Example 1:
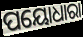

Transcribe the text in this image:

ପୟୋଧାରା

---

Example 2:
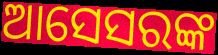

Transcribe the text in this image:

ଆସେସରଙ୍କ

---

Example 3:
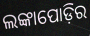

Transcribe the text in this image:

ଲଙ୍କାପୋଡ଼ିର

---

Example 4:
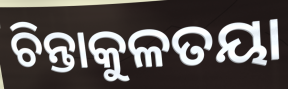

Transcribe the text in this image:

ଚିନ୍ତାକୁଳତୟା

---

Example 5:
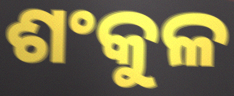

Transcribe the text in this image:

ଶଂକୁଳ